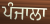
ਪੰਜਾਲਾ